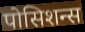
पोसिशन्स